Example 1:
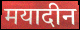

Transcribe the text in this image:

मयादीन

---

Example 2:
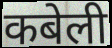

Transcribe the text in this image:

कबेली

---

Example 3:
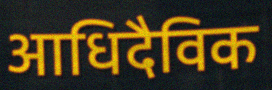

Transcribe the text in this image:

आधिदैविक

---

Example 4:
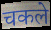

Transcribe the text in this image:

चकले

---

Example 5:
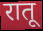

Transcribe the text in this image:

रातू